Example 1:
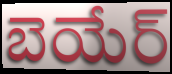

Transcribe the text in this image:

బెయేర్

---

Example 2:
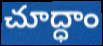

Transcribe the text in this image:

చూద్ధాం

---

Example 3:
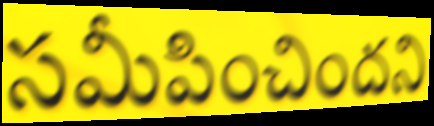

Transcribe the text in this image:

సమీపించిందని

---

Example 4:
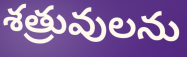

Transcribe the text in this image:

శత్రువులను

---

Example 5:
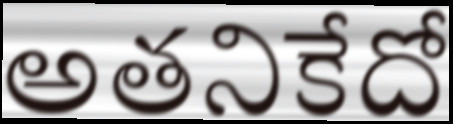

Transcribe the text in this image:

అతనికేదో